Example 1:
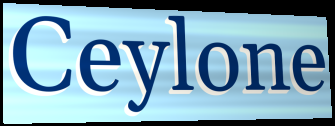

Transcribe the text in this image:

Ceylone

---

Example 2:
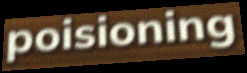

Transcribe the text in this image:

poisioning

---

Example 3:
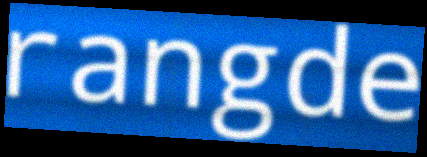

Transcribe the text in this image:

rangde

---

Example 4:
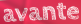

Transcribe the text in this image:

avante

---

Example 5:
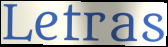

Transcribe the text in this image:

Letras